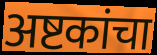
अष्टकांचा